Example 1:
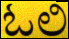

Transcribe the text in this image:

ಓಲಿ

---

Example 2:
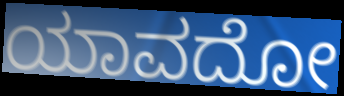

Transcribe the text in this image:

ಯಾವದೋ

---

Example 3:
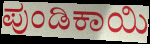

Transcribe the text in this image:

ಪುಂಡಿಕಾಯಿ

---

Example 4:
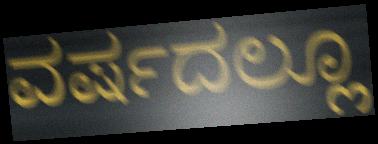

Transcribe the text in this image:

ವರ್ಷದಲ್ಲೂ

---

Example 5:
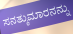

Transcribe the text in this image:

ಸನತ್ಕುಮಾರನನ್ನು